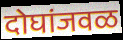
दोघांजवळ